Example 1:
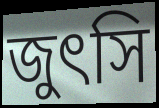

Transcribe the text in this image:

জুৎসি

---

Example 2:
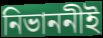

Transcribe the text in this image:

নিভাননীই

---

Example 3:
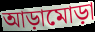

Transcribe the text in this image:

আড়ামোড়া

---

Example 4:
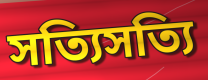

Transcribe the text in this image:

সত্যিসত্যি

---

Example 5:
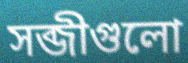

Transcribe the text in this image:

সব্জীগুলো